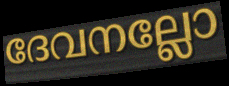
ദേവനല്ലോ